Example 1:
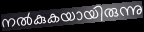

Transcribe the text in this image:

നൽകുകയായിരുന്നു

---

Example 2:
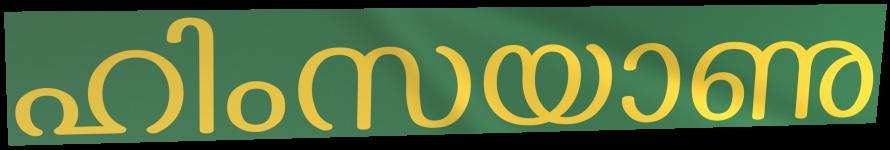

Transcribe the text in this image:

ഹിംസയാണു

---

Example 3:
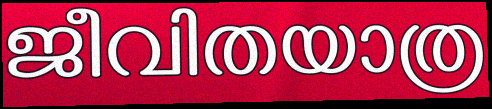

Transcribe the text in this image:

ജീവിതയാത്ര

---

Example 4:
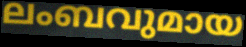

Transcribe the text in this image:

ലംബവുമായ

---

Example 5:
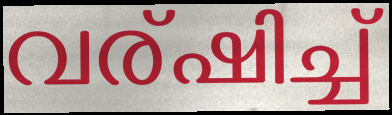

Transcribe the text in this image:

വര്ഷിച്ച്